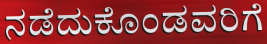
ನಡೆದುಕೊಂಡವರಿಗೆ